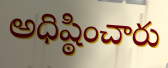
అధిష్ఠించారు